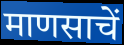
माणसाचें